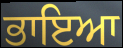
ਭਾਇਆ